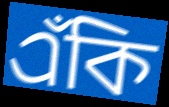
এঁকি